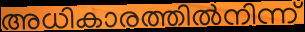
അധികാരത്തിൽനിന്ന്